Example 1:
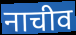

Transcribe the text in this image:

नाचीव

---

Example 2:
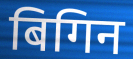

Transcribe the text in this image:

बिगिन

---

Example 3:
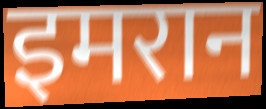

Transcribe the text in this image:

इमरान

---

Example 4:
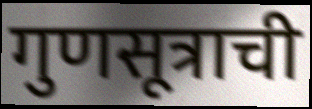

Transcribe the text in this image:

गुणसूत्राची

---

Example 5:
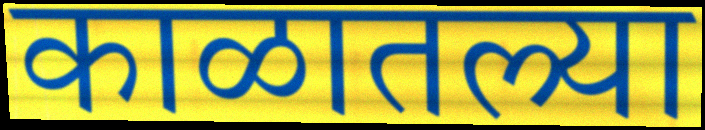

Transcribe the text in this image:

काळातल्या